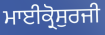
ਮਾਈਕ੍ਰੋਸੁਰਜੀ